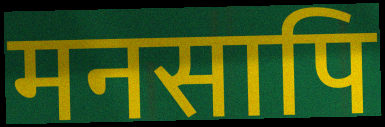
मनसापि